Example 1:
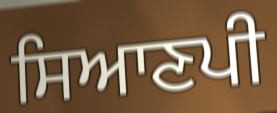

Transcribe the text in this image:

ਸਿਆਣਪੀ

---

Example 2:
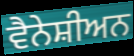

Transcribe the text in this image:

ਵੈਨੇਸ਼ੀਅਨ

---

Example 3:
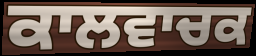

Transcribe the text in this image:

ਕਾਲਵਾਚਕ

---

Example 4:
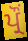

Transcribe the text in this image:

ਪ੍ਰੌਂ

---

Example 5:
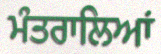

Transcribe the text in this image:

ਮੰਤਰਾਲਿਆਂ